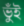
ভুঁই